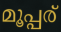
മൂപ്പര്